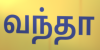
வந்தா